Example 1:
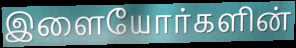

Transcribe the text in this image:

இளையோர்களின்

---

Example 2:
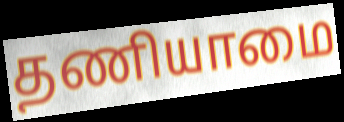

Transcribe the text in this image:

தணியாமை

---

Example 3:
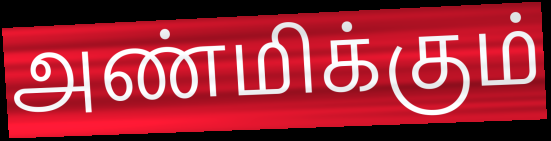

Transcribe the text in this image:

அண்மிக்கும்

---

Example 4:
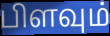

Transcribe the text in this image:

பிளவும்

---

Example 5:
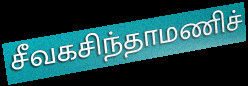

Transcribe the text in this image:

சீவகசிந்தாமணிச்